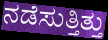
ನಡೆಸುತ್ತಿತ್ತು